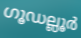
ഗൂഡല്ലൂർ